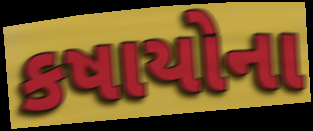
કષાયોના